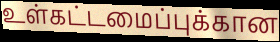
உள்கட்டமைப்புக்கான